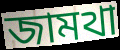
জামথা